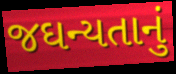
જઘન્યતાનું